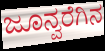
ಜೂನ್ವರೆಗಿನ